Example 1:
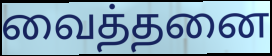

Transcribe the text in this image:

வைத்தனை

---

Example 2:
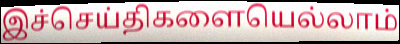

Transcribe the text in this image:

இச்செய்திகளையெல்லாம்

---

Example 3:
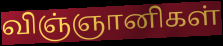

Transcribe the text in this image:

விஞ்ஞானிகள்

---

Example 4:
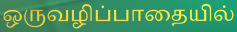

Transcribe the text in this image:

ஒருவழிப்பாதையில்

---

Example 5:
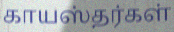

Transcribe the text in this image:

காயஸ்தர்கள்